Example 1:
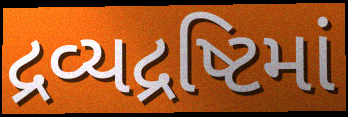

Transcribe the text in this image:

દ્રવ્યદ્રષ્ટિમાં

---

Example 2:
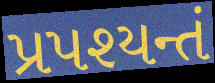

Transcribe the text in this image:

પ્રપશ્યન્તં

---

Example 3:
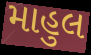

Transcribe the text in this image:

માહુલ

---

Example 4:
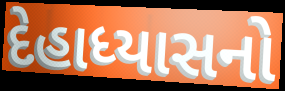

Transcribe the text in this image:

દેહાધ્યાસનો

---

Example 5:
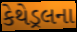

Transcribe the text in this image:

કેથેડ્રલના